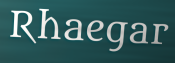
Rhaegar